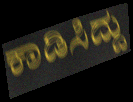
ಕಾಡಿಸಿದ್ದು